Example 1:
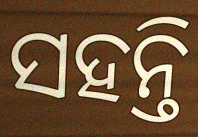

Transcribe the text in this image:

ସହନ୍ତି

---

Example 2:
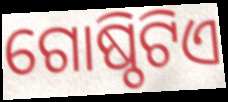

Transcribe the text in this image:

ଗୋଷ୍ଠିଟିଏ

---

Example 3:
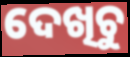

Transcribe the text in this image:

ଦେଖିଚୁ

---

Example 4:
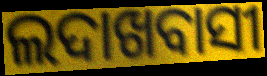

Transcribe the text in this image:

ଲଦାଖବାସୀ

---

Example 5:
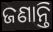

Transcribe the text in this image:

ଜଣାନ୍ତି